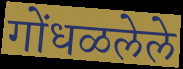
गोंधळलेले